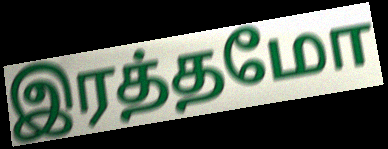
இரத்தமோ